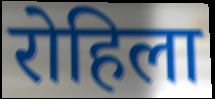
रोहिला